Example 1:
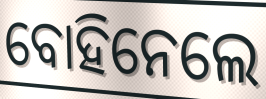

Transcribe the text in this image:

ବୋହିନେଲେ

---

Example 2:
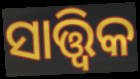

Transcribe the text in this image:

ସାତ୍ତ୍ବିକ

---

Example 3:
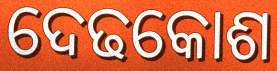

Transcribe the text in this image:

ଦେଢକୋଶ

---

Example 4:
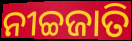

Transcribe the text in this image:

ନୀଚ୍ଚଜାତି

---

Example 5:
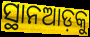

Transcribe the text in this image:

ସ୍ଥାନଆଡ଼କୁ